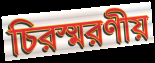
চিরস্মরণীয়